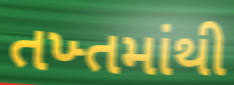
તખ્તમાંથી